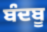
ਬੰਦਬੂ